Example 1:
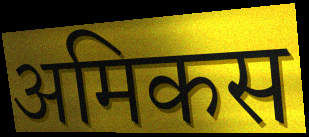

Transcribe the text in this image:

अमिकस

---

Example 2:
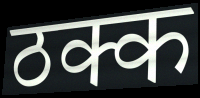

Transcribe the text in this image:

ठक्क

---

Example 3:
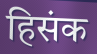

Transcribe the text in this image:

हिसंक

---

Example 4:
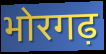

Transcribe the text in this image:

भोरगढ़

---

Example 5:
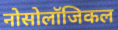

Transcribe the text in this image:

नोसोलॉजिकल